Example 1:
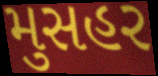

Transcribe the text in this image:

મુસહર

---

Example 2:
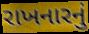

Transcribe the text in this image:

રાખનારનું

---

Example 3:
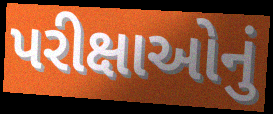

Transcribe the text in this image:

પરીક્ષાઓનું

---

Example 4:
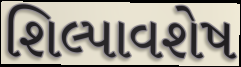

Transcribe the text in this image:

શિલ્પાવશેષ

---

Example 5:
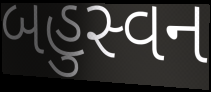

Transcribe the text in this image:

બહુસ્વન